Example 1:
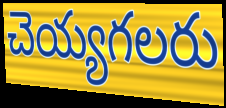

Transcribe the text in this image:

చెయ్యగలరు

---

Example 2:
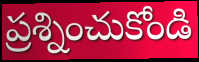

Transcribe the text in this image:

ప్రశ్నించుకోండి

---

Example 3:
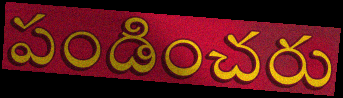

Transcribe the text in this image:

పండించరు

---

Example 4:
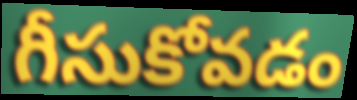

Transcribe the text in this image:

గీసుకోవడం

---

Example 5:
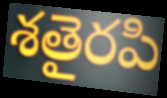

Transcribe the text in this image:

శతైరపి